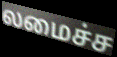
லமைச்ச